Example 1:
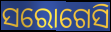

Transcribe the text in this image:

ସରୋଗେସି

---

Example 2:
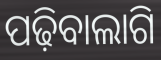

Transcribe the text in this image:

ପଢ଼ିବାଲାଗି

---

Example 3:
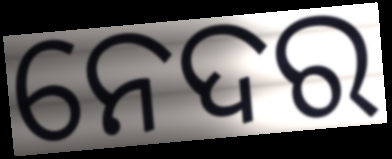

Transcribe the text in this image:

ନେଦର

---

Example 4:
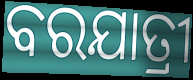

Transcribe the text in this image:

ବରଯାତ୍ରୀ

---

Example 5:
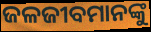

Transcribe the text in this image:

ଜଳଜୀବମାନଙ୍କୁ